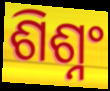
ଶିଶ୍ନଂ